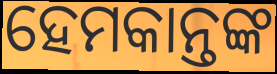
ହେମକାନ୍ତଙ୍କ